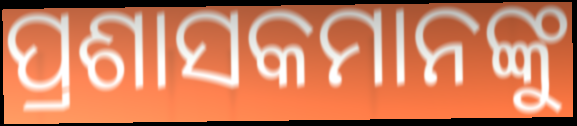
ପ୍ରଶାସକମାନଙ୍କୁ